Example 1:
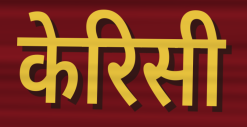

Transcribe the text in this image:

केरिसी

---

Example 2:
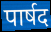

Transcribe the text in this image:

पार्षद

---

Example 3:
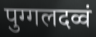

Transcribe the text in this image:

पुग्गलदव्वं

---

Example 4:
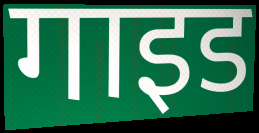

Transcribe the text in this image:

गाइड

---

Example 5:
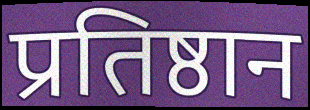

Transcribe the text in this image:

प्रतिष्ठान